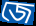
জে